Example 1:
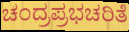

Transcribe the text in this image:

ಚಂದ್ರಪ್ರಭಚರಿತೆ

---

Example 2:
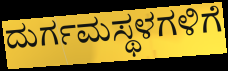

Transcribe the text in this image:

ದುರ್ಗಮಸ್ಥಳಗಳಿಗೆ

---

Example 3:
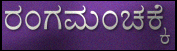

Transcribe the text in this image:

ರಂಗಮಂಚಕ್ಕೆ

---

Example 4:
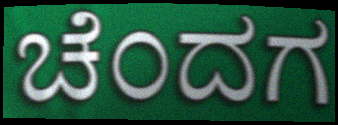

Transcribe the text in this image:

ಚೆಂದಗ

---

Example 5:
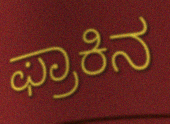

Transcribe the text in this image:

ಫ್ರಾಕಿನ